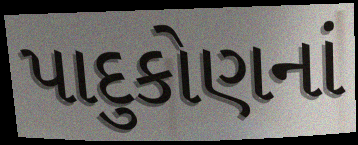
પાદુકોણનાં